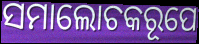
ସମାଲୋଚକରୂପେ